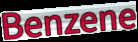
Benzene